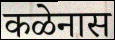
कळेनास